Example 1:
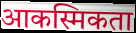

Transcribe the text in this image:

आकस्मिकता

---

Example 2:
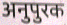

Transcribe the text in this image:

अनुपुरक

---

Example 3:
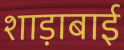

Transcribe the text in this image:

शाड़ाबाई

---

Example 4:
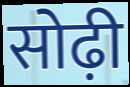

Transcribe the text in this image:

सोढ़ी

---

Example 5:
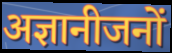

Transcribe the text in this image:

अज्ञानीजनों